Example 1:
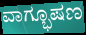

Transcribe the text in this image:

ವಾಗ್ಭೂಷಣ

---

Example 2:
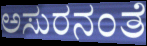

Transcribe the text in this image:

ಅಸುರನಂತೆ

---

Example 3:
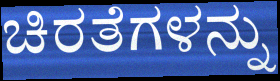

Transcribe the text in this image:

ಚಿರತೆಗಳನ್ನು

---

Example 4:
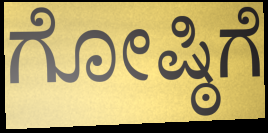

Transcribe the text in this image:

ಗೋಷ್ಠಿಗೆ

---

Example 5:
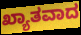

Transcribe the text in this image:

ಖ್ಯಾತವಾದ